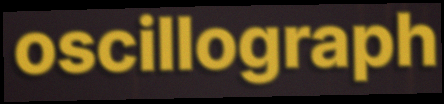
oscillograph